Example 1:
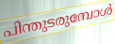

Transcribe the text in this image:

പിന്തുടരുമ്പോൾ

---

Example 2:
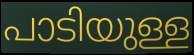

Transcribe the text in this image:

പാടിയുള്ള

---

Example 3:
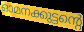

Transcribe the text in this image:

ഓമനക്കുട്ടന്റെ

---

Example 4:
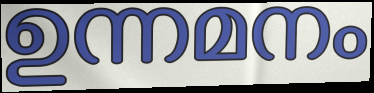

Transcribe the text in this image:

ഉന്നമനം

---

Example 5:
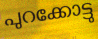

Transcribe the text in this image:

പുറക്കോട്ടു